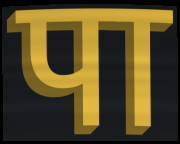
पा